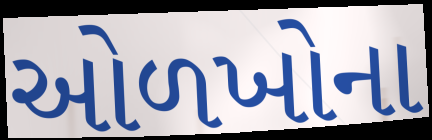
ઓળખોના